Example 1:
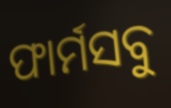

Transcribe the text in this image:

ଫାର୍ମସବୁ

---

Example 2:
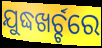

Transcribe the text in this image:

ଯୁଦ୍ଧଖର୍ଚ୍ଚରେ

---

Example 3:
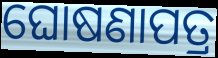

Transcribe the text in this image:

ଘୋଷଣାପତ୍ର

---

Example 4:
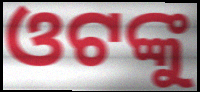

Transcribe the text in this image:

ଓଟଙ୍କୁ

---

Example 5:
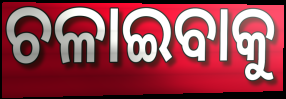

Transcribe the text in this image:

ଚଳାଇବାକୁ